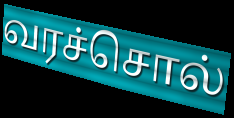
வரச்சொல்